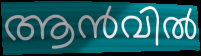
ആൻവിൽ